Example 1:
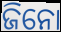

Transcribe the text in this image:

ଜିନୋ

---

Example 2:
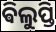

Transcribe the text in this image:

ଵିଲୁପ୍ତି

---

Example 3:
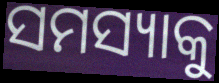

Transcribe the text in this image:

ସମସ୍ୟାକୁ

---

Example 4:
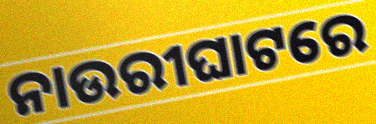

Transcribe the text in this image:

ନାଉରୀଘାଟରେ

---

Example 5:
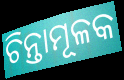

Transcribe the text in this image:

ଚିନ୍ତାମୂଳକ